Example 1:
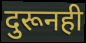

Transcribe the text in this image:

दुरूनही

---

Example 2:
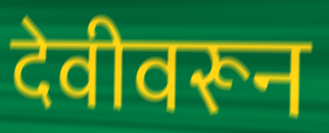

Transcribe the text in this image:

देवीवरून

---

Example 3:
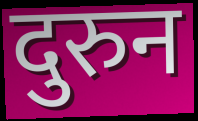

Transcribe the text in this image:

दुरुन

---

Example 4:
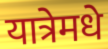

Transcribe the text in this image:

यात्रेमधे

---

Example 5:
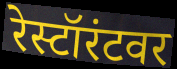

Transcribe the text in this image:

रेस्टॉरंटवर